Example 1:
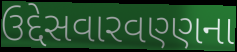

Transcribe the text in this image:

ઉદ્દેસવારવણ્ણના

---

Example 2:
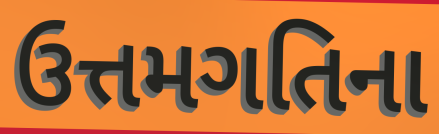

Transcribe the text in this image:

ઉત્તમગતિના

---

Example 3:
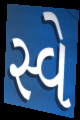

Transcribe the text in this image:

સ્વે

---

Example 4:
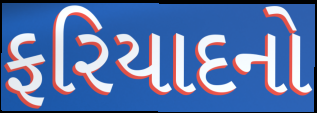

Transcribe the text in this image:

ફરિયાદનો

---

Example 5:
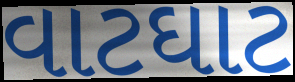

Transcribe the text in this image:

વાટઘાટ